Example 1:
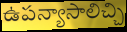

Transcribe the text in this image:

ఉపన్యాసాలిచ్చి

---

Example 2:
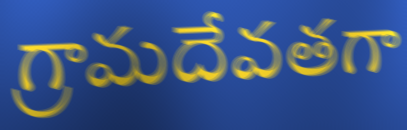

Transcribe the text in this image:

గ్రామదేవతగా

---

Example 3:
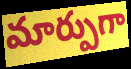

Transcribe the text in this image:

మార్పుగా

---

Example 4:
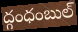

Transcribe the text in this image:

ద్గంధంబుల్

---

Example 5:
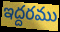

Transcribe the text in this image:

ఇద్దరము